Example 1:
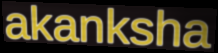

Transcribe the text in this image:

akanksha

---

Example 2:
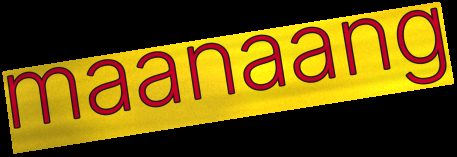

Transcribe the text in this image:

maanaang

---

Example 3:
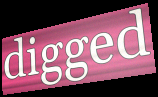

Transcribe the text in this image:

digged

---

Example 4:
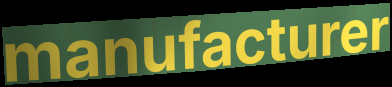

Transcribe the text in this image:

manufacturer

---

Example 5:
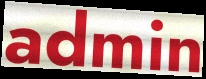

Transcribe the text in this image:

admin